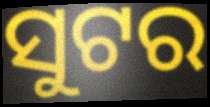
ସୁଟର